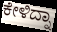
ಕೇಳಿದ್ನಾ